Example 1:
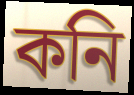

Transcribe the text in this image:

কনি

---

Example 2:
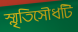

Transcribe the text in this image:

স্মৃতিসৌধটি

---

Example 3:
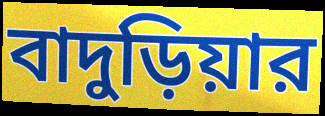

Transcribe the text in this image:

বাদুড়িয়ার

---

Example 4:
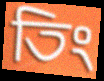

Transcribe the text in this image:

তিং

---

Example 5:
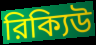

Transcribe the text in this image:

রিক্যিউ